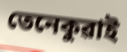
তেনেকুৱাই